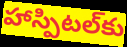
హాస్పిటల్‌కు